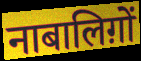
नाबालिग़ों